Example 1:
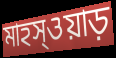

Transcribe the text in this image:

মাহস্ওয়াড়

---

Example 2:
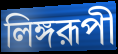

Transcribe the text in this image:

লিঙ্গরূপী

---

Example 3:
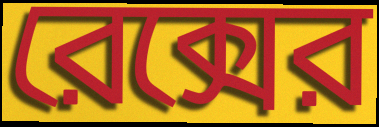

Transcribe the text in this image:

রেক্সের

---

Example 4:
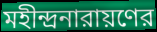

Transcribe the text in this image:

মহীন্দ্রনারায়ণের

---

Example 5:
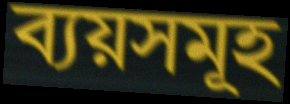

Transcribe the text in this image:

ব্যয়সমূহ